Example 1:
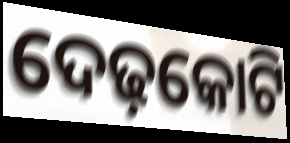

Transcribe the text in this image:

ଦେଢ଼କୋଟି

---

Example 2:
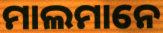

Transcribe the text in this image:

ମାଲମାନେ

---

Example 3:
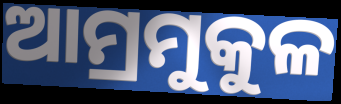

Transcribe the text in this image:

ଆମ୍ରମୁକୁଳ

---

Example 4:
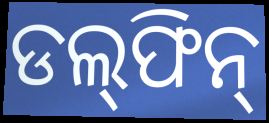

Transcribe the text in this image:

ଡଲ୍‍ଫିନ୍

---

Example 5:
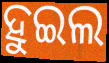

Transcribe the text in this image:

ହୁଇଲ